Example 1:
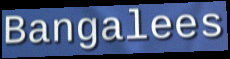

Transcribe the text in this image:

Bangalees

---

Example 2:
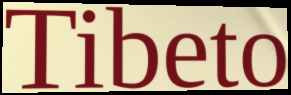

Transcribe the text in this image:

Tibeto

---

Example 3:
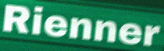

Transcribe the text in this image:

Rienner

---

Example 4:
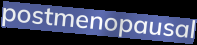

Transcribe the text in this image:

postmenopausal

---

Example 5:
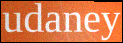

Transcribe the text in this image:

udaney